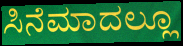
ಸಿನೆಮಾದಲ್ಲೂ